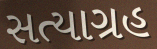
સત્‍યાગ્રહ